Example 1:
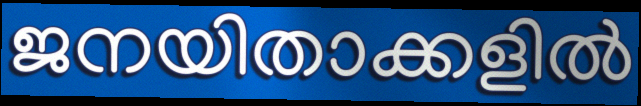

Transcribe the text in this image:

ജനയിതാക്കളിൽ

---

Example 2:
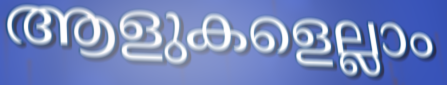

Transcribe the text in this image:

ആളുകളെല്ലാം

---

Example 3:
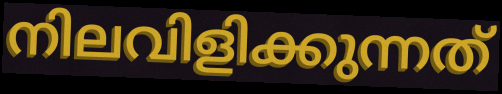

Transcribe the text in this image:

നിലവിളിക്കുന്നത്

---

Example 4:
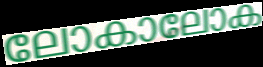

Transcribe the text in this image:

ലോകാലോക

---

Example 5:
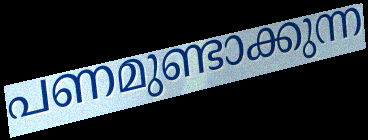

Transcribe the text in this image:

പണമുണ്ടാക്കുന്ന